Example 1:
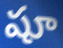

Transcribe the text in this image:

షూ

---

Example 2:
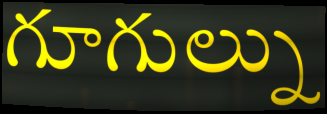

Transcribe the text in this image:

గూగుల్ను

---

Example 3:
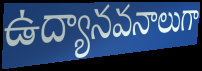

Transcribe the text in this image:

ఉద్యానవనాలుగా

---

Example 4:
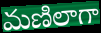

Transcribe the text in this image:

మణిలాగా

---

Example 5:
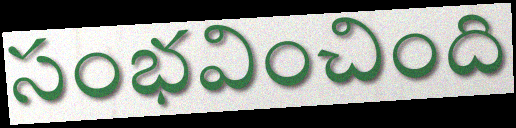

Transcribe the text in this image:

సంభవించింది